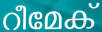
റീമേക്